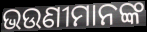
ଭଉଣୀମାନଙ୍କ